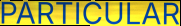
PARTICULAR